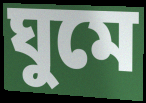
ঘুমে